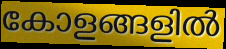
കോളങ്ങളിൽ